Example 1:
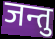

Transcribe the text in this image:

जन्तु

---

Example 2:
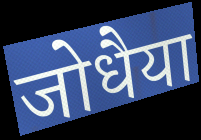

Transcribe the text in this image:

जोधैया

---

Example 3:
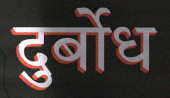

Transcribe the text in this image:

दुर्बोध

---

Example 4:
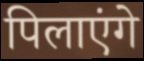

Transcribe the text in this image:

पिलाएंगे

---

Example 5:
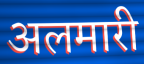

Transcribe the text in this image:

अलमारी